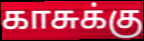
காசுக்கு